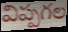
విప్పగల